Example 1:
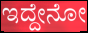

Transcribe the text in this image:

ಇದ್ದೇನೋ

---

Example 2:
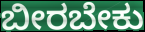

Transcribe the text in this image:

ಬೀರಬೇಕು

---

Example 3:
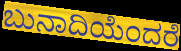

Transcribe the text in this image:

ಬುನಾದಿಯೆಂದರೆ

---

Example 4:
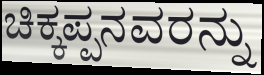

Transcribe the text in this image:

ಚಿಕ್ಕಪ್ಪನವರನ್ನು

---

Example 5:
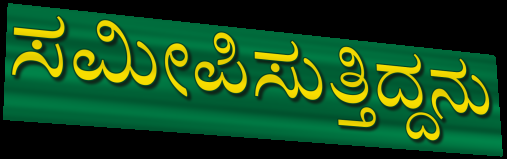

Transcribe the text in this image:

ಸಮೀಪಿಸುತ್ತಿದ್ದನು